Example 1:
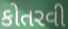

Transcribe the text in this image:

કોતરવી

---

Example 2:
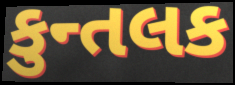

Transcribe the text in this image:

કુન્તલક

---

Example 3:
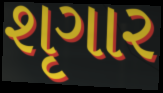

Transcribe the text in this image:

શૃગાર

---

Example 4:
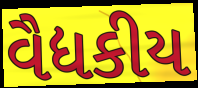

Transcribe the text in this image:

વૈદ્યકીય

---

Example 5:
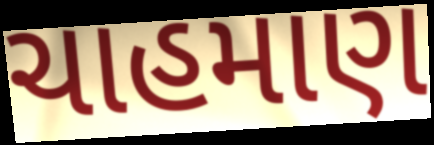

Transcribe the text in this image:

ચાહમાણ